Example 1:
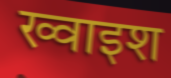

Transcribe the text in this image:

ख्वाइश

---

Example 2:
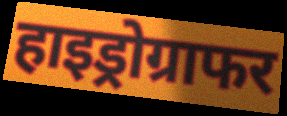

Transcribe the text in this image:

हाइड्रोग्राफर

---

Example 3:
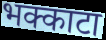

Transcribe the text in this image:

भक्काटा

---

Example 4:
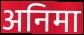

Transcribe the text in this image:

अनिमा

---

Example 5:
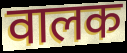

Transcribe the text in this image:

वालक